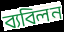
ব্যবিলন